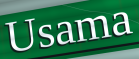
Usama